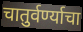
चातुर्वर्ण्याचा